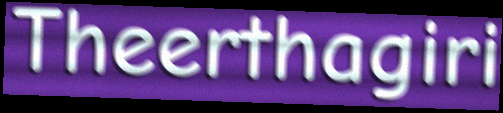
Theerthagiri